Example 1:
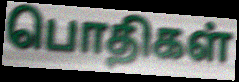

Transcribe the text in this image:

பொதிகள்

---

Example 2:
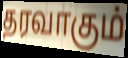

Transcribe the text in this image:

தரவாகும்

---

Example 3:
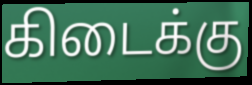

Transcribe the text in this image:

கிடைக்கு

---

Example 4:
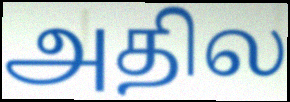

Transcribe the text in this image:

அதில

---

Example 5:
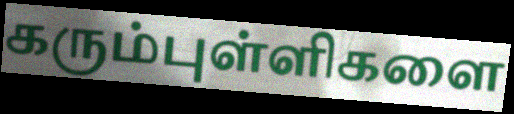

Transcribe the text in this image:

கரும்புள்ளிகளை